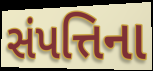
સંપત્તિના